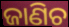
ଜାଣିଚ